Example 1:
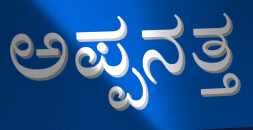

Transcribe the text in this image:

ಅಪ್ಪನತ್ತ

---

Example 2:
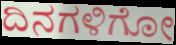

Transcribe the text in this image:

ದಿನಗಳಿಗೋ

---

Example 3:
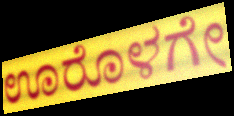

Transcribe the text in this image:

ಊರೊಳಗೇ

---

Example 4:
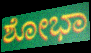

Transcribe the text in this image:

ಶೋಭಾ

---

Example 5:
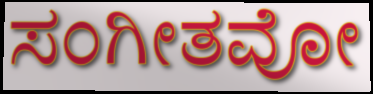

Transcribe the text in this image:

ಸಂಗೀತವೋ